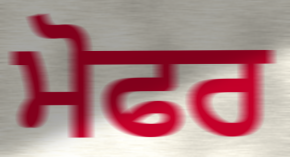
ਮੋਫਰ